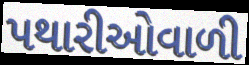
પથારીઓવાળી